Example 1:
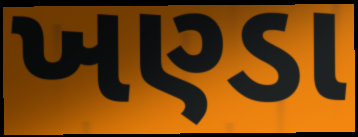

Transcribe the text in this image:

ખણ્ડા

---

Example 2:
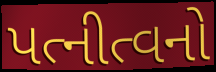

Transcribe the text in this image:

પત્નીત્વનો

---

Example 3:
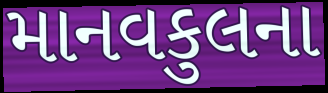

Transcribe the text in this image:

માનવકુલના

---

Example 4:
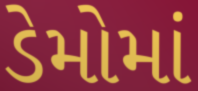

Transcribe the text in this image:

ડેમોમાં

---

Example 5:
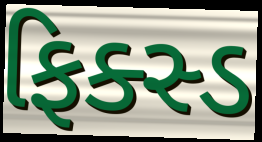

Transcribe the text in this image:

ફિક્સ્ડ